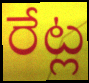
రేట్ల